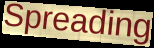
Spreading